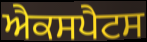
ਐਕਸਪੈਟਸ